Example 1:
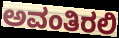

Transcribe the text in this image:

ಅವಂತಿರಲಿ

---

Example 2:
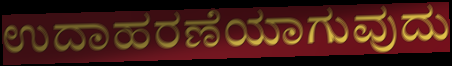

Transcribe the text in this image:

ಉದಾಹರಣೆಯಾಗುವುದು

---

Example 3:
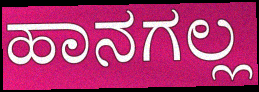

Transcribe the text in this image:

ಹಾನಗಲ್ಲ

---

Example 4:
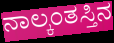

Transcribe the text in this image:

ನಾಲ್ಕಂತಸ್ತಿನ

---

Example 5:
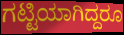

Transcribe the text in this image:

ಗಟ್ಟಿಯಾಗಿದ್ದರೂ